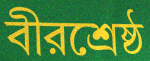
বীরশ্রেষ্ঠ